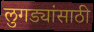
लुगड्यांसाठी